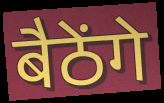
बैठेंगे